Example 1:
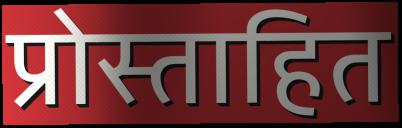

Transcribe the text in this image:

प्रोस्ताहित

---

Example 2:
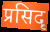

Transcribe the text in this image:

प्रसिदृ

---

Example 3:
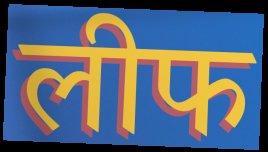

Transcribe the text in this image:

लीफ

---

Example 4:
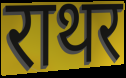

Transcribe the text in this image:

राथर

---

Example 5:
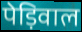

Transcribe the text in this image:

पेड़िवाल